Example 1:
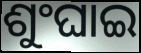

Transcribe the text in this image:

ଶୁଂଘାଇ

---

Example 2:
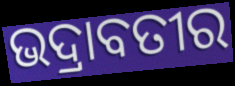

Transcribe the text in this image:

ଭଦ୍ରାବତୀର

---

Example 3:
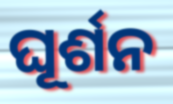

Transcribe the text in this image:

ଘୂର୍ଶନ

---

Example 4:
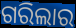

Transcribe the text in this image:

ଗରିଲାର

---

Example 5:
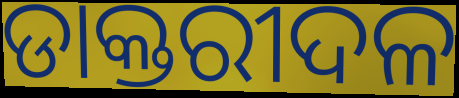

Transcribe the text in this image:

ଡାକ୍ତରୀଦଳ